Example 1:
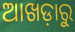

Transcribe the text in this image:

ଆଖଡ଼ାରୁ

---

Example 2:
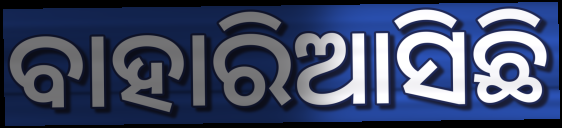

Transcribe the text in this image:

ବାହାରିଆସିଛି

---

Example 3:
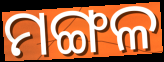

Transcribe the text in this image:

ମଙ୍ଗଳ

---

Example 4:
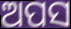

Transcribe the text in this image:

ଅପସ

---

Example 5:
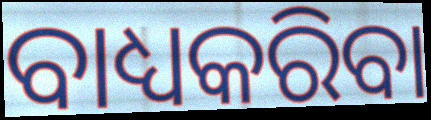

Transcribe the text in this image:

ବାଧ୍ୟକରିବା